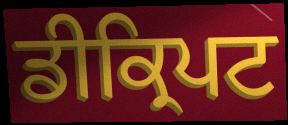
ਡੀਕ੍ਰਿਪਟ